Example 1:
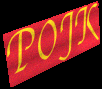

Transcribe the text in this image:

POJK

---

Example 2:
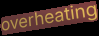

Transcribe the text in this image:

overheating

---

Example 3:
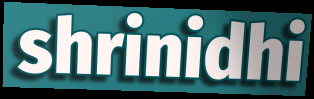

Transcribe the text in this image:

shrinidhi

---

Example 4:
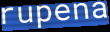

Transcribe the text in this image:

rupena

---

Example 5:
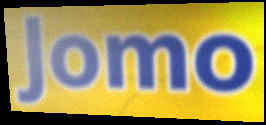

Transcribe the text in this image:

Jomo